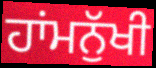
ਹਾਂਮਨੁੱਖੀ